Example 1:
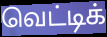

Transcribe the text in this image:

வெட்டிக்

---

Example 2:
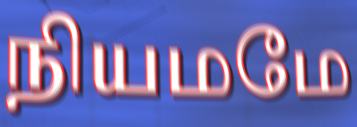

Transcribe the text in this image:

நியமமே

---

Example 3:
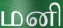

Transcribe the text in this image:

மனி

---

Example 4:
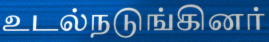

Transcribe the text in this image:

உடல்நடுங்கினர்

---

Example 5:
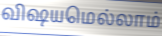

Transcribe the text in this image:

விஷயமெல்லாம்